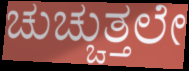
ಚುಚ್ಚುತ್ತಲೇ